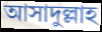
আসাদুল্লাহ